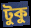
টুকু